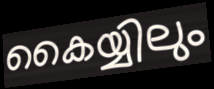
കൈയ്യിലും